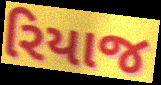
રિયાજ